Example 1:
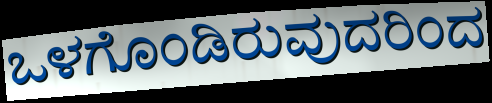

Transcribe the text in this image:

ಒಳಗೊಂಡಿರುವುದರಿಂದ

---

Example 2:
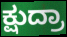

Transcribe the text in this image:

ಕ್ಷುದ್ರಾ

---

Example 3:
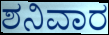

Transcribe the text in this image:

ಶನಿವಾರ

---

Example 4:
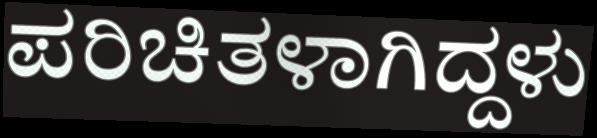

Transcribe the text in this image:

ಪರಿಚಿತಳಾಗಿದ್ದಳು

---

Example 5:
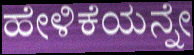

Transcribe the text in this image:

ಹೇಳಿಕೆಯನ್ನೇ